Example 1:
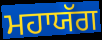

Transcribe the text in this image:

ਮਹਾਯੱਗ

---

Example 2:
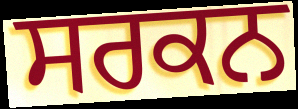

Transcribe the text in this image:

ਸਰਕਨ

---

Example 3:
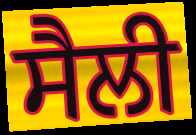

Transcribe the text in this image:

ਸੈਲੀ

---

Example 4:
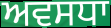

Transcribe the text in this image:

ਅਵਸਧਾ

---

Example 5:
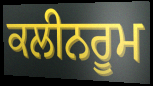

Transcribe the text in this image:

ਕਲੀਨਰੂਮ